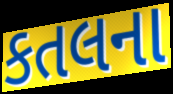
કતલના